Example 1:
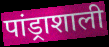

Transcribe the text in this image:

पांड्राशाली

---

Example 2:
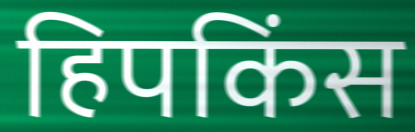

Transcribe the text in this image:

हिपकिंस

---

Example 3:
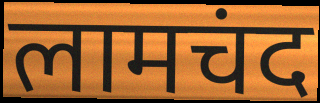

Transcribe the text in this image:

लामचंद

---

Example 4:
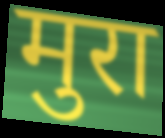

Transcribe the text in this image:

मुरा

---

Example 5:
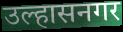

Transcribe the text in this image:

उल्हासनगर